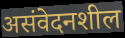
असंवेदनशील